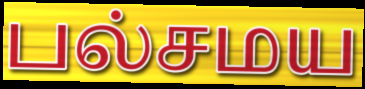
பல்சமய